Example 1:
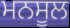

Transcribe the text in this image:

ਮਨਸੂਲ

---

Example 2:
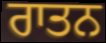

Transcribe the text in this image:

ਰਾਤਨ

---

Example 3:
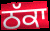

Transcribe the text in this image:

ਠੱਕਾ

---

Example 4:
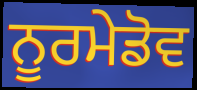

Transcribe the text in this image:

ਨੂਰਮੇਡੋਵ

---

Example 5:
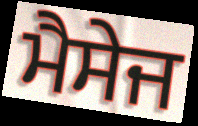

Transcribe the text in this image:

ਮੈਸੇਜ